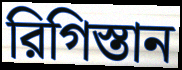
রিগিস্তান